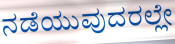
ನಡೆಯುವುದರಲ್ಲೇ